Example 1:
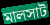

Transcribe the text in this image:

মালসাট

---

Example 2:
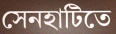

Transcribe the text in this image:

সেনহাটিতে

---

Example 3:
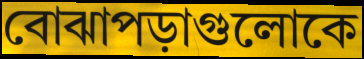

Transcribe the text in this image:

বোঝাপড়াগুলোকে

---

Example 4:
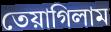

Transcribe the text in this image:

তেয়াগিলাম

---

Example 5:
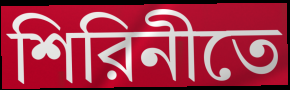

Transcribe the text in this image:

শিরিনীতে